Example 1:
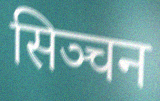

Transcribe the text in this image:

सिञ्चन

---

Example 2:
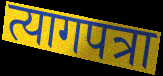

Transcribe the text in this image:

त्यागपत्रा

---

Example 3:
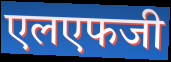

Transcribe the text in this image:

एलएफजी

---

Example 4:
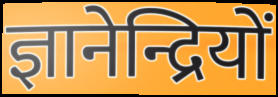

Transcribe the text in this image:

ज्ञानेन्द्रियों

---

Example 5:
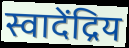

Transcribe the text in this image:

स्वादेंद्रिय